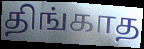
திங்காத